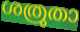
ശത്രുതാ